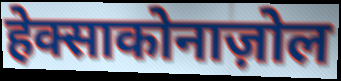
हेक्साकोनाज़ोल